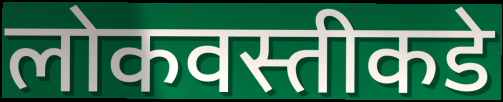
लोकवस्तीकडे